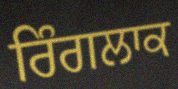
ਰਿੰਗਲਾਕ